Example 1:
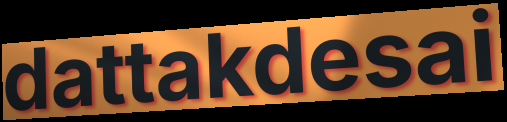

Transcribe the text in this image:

dattakdesai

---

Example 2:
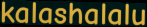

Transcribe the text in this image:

kalashalalu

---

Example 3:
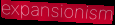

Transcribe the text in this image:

expansionism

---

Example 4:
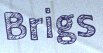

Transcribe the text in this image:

Brigs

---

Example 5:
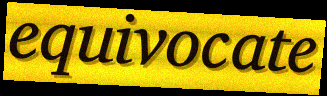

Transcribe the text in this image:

equivocate